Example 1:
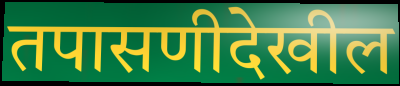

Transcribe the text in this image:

तपासणीदेखील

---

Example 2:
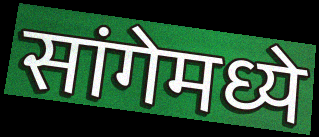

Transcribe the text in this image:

सांगेमध्ये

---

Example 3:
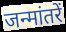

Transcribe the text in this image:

जन्मांतरें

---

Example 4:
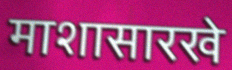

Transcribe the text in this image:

माशासारखे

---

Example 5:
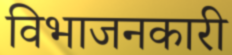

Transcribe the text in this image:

विभाजनकारी